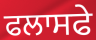
ਫਲਾਸਫੇ